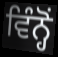
ਵਿੰਨ੍ਹੋਂ